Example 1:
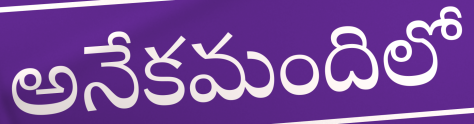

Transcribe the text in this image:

అనేకమందిలో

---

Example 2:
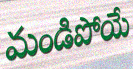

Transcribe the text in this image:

మండిపోయే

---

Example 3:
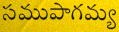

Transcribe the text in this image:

సముపాగమ్య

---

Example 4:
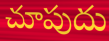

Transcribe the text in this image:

చూపుదు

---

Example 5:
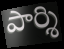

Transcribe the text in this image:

పార్శి